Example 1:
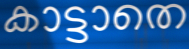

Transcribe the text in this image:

കാട്ടാതെ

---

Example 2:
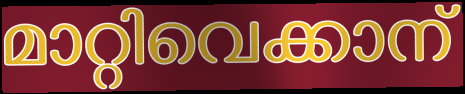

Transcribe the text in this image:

മാറ്റിവെക്കാന്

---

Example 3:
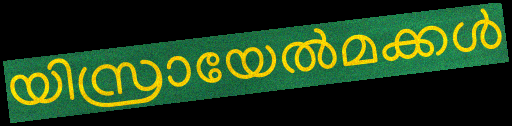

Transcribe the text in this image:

യിസ്രായേൽമക്കൾ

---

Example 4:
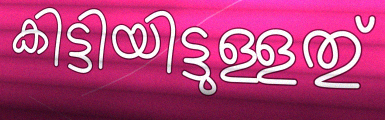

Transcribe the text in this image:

കിട്ടിയിട്ടുള്ളതു്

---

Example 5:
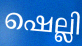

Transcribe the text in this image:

ഷെല്ലി